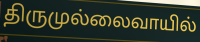
திருமுல்லைவாயில்